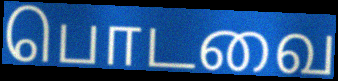
பொடவை